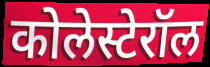
कोलेस्टेरॉल